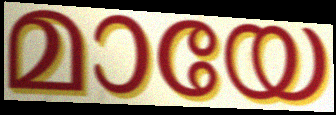
മായേ